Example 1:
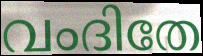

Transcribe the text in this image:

വംദിതേ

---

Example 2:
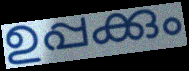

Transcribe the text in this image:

ഉപ്പക്കും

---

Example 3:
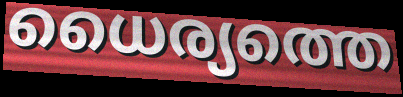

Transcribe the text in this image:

ധൈര്യത്തെ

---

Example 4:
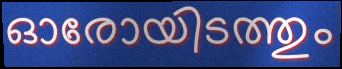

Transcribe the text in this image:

ഓരോയിടത്തും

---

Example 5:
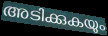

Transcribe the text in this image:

അടിക്കുകയും